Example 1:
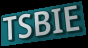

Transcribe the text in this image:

TSBIE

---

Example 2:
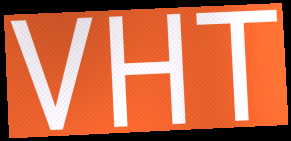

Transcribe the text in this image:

VHT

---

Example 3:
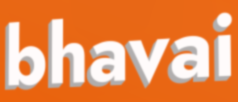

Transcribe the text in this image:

bhavai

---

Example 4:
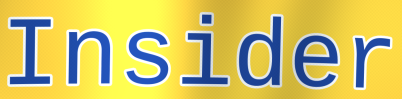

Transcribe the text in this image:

Insider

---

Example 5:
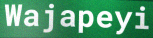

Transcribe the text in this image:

Wajapeyi